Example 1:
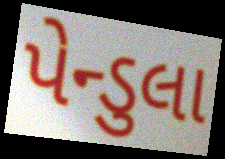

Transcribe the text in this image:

પેન્ડુલા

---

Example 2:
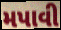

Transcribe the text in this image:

મપાવી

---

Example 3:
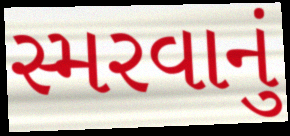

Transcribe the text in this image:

સ્મરવાનું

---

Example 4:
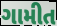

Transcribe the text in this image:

ગામીત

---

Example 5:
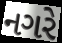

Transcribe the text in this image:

નગરે